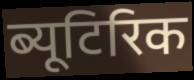
ब्यूटिरिक